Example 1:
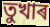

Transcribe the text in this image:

তুখাৰ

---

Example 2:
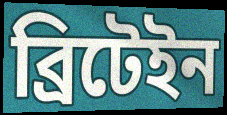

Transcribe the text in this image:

ব্ৰিটেইন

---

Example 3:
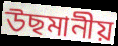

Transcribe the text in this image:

উছমানীয়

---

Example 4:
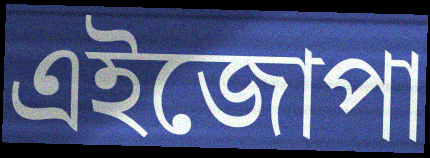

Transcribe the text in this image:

এইজোপা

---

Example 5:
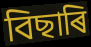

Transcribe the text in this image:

বিছাৰি